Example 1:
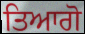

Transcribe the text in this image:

ਤਿਆਗੋ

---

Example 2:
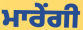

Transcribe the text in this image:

ਮਾਰੇਂਗੀ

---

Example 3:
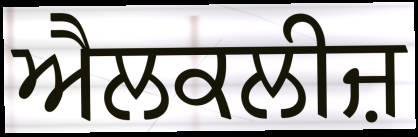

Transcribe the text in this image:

ਐਲਕਲੀਜ਼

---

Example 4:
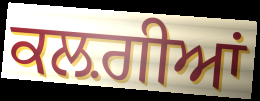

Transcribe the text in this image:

ਕਲ਼ਗੀਆਂ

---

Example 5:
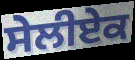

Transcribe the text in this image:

ਸੇਲੀਏਕ